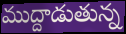
ముద్దాడుతున్న